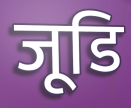
जूडि